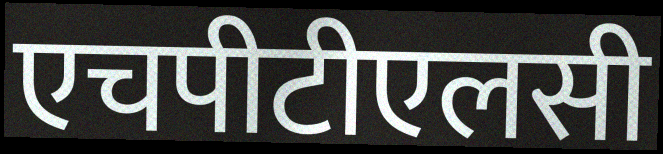
एचपीटीएलसी